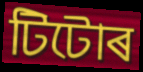
টিটোৰ